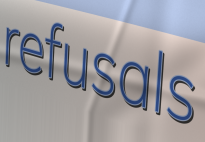
refusals